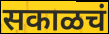
सकाळचं